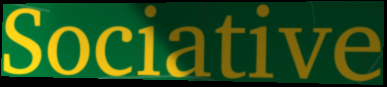
Sociative